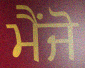
ਮੈਂਜੋ